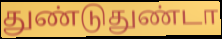
துண்டுதுண்டா